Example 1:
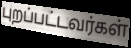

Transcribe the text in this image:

புறப்பட்டவர்கள்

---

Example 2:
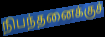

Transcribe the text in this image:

நிபந்தனைக்குச்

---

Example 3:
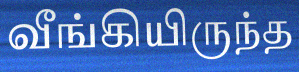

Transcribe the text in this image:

வீங்கியிருந்த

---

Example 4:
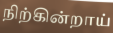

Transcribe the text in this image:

நிற்கின்றாய்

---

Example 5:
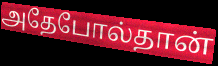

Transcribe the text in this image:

அதேபோல்தான்